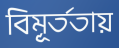
বিমূর্ততায়